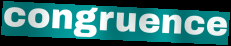
congruence